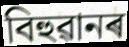
বিহুৱানৰ